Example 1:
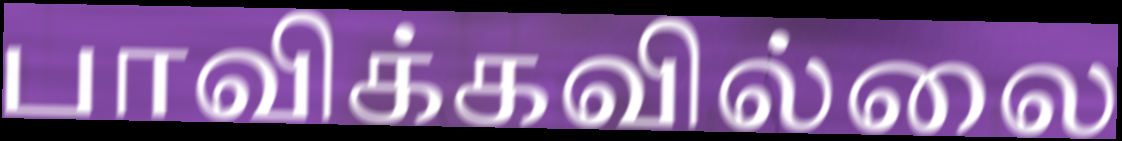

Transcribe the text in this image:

பாவிக்கவில்லை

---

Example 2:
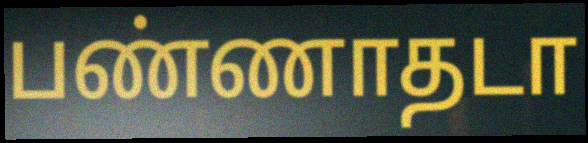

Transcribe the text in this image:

பண்ணாதடா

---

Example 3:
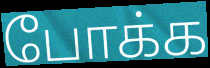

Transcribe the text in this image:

போக்க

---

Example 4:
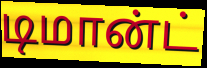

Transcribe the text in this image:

டிமான்ட்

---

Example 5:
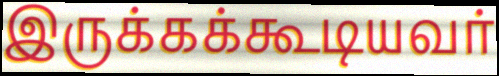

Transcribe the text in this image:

இருக்கக்கூடியவர்